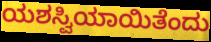
ಯಶಸ್ವಿಯಾಯಿತೆಂದು